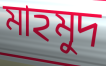
মাহমুদ